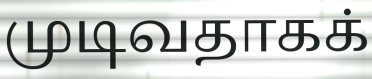
முடிவதாகக்